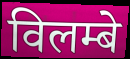
विलम्बे